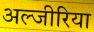
अल्जीरिया